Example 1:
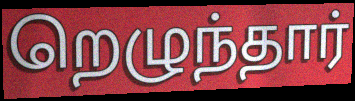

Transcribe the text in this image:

றெழுந்தார்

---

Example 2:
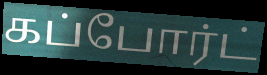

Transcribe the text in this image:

கப்போர்ட்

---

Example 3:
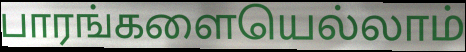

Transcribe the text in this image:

பாரங்களையெல்லாம்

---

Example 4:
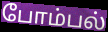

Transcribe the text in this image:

போம்பல்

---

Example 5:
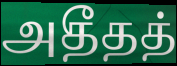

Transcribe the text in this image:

அதீதத்